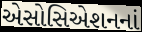
એસોસિએશનનાં